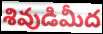
శివుడిమీద